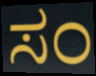
ಸಂ